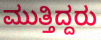
ಮುತ್ತಿದ್ದರು